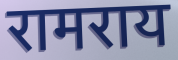
रामराय